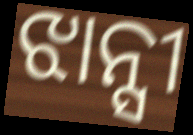
ଝାନ୍ସୀ